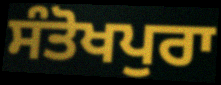
ਸੰਤੋਖਪੁਰਾ